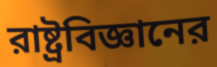
রাষ্ট্রবিজ্ঞানের